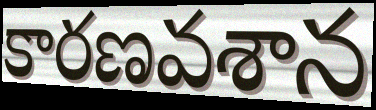
కారణవశాన